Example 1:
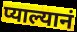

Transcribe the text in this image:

प्याल्यानं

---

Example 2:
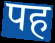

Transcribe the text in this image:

पह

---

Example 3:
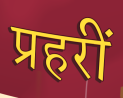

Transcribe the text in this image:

प्रहरीं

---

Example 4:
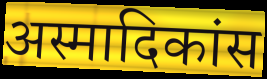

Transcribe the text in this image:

अस्मादिकांस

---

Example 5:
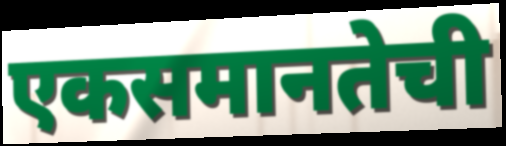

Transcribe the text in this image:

एकसमानतेची